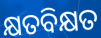
କ୍ଷତବିକ୍ଷତ